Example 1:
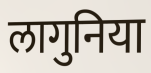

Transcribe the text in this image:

लागुनिया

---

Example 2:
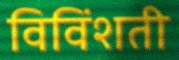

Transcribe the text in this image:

विविंशती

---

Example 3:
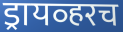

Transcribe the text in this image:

ड्रायव्हरच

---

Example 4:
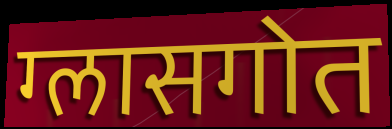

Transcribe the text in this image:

ग्लासगोत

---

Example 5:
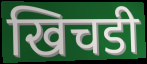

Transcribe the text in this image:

खिचडी